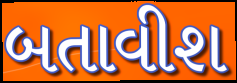
બતાવીશ